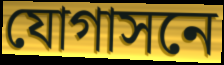
যোগাসনে